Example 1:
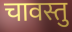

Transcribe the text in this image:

चावस्तु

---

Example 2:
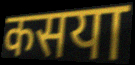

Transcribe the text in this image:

कसया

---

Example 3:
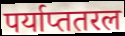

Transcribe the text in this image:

पर्याप्ततरल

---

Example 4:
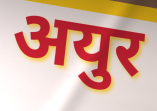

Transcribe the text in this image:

अयुर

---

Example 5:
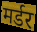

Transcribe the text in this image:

मर्डर